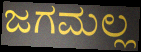
ಜಗಮಲ್ಲ